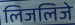
लिजलिजे